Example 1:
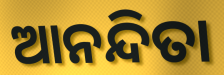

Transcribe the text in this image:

ଆନନ୍ଦିତା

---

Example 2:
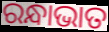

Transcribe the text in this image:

ରନ୍ଧାଭାତ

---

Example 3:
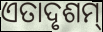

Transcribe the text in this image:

ଏତାଦୃଶମ୍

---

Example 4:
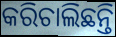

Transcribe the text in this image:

କରିଚାଲିଛନ୍ତି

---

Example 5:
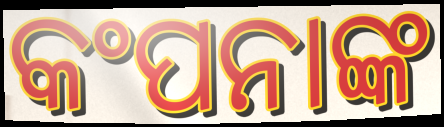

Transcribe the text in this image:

କଂପନାଙ୍କ